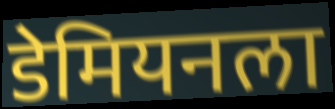
डेमियनला